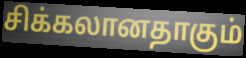
சிக்கலானதாகும்